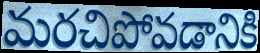
మరచిపోవడానికి